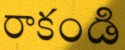
రాకండి